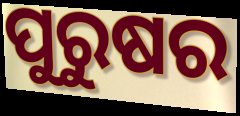
ପୁରୁଷର